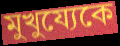
মুখুয্যেকে